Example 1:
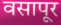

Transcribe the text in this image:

वसापूर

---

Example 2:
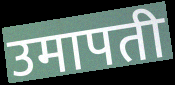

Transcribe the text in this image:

उमापती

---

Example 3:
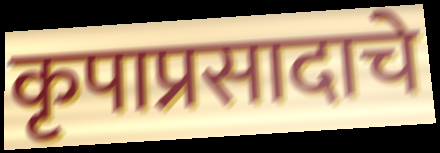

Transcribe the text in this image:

कृपाप्रसादाचे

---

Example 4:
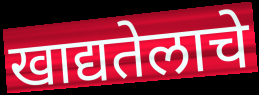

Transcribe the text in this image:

खाद्यतेलाचे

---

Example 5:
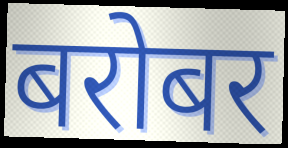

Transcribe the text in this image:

बरोबर